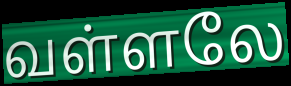
வள்ளலே